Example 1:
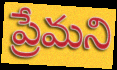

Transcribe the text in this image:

ప్రేమని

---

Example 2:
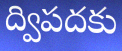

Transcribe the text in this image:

ద్విపదకు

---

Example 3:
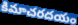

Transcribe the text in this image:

కిమాచరదయం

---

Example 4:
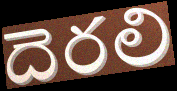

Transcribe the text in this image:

దెరలి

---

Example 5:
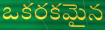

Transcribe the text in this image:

ఒకరకమైన